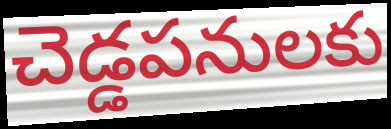
చెడ్డపనులకు